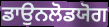
ਡਾਉਨਲੋਡਯੋਗ